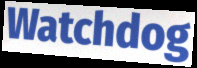
Watchdog